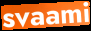
svaami